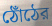
ঠোঁঠের